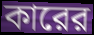
কারের